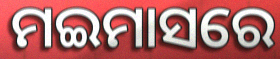
ମଇମାସରେ